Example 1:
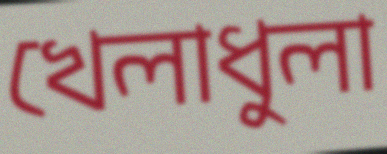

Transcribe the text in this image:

খেলাধুলা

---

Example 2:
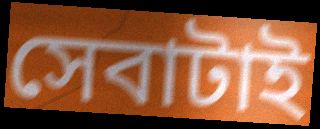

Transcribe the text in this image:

সেবাটাই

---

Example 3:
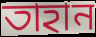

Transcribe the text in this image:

তাহান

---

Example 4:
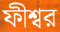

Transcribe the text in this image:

ফীশ্বর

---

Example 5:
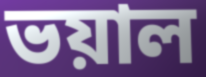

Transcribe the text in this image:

ভয়াল